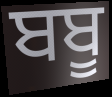
ਬਬੂ